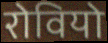
रोवियो